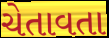
ચેતાવતા